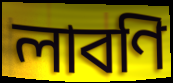
লাবণি